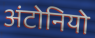
अंटोनियो